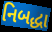
નિબદ્ધા